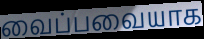
வைப்பவையாக